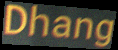
Dhang